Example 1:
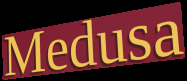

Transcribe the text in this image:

Medusa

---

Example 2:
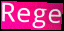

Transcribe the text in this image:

Rege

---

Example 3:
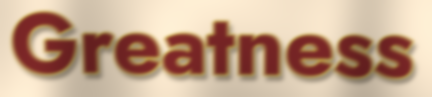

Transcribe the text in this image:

Greatness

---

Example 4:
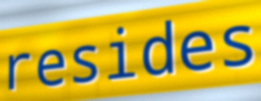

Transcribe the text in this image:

resides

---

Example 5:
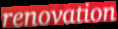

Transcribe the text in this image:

renovation